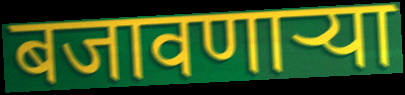
बजावणाऱ्या